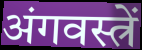
अंगवस्त्रें